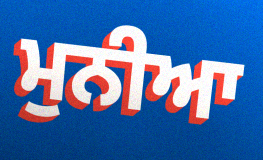
ਮੁਨੀਆ